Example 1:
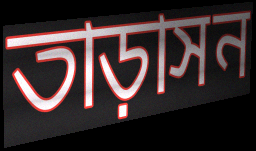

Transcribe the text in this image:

তাড়াসন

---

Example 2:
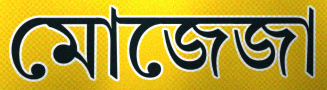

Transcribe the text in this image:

মোজেজা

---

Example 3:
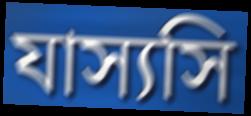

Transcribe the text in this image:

যাস্যসি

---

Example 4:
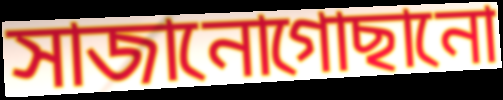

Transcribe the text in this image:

সাজানোগোছানো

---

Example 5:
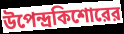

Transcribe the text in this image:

উপেন্দ্রকিশোরের